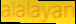
alalayan